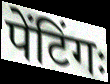
पेंटिंगः